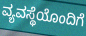
ವ್ಯವಸ್ಥೆಯೊಂದಿಗೆ